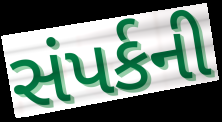
સંપર્કની